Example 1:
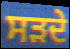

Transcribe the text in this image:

ਸੜਦੇ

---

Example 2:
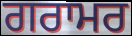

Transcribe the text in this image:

ਗਰਾਮਰ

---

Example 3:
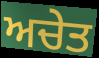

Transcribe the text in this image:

ਅਚੇਤ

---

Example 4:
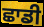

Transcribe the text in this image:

ਛਾਡੀ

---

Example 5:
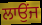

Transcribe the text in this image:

ਲਾਉਂਜ